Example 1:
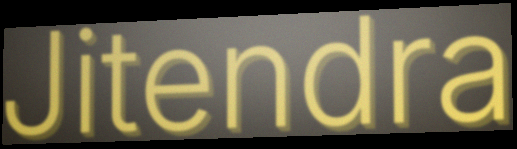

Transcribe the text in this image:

Jitendra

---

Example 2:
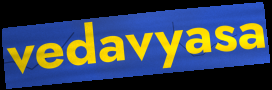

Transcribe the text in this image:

vedavyasa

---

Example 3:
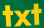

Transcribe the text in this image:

txt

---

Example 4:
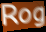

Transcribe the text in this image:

Rog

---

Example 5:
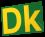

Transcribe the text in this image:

Dk